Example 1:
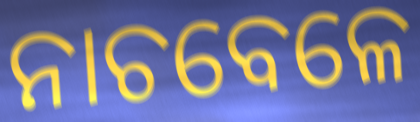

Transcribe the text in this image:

ନାଚବେଳେ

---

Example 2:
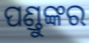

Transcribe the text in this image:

ପଣ୍ଡୁଙ୍କର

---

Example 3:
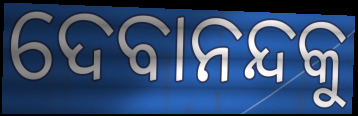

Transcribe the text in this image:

ଦେବାନନ୍ଦକୁ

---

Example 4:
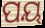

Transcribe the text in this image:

ପୟ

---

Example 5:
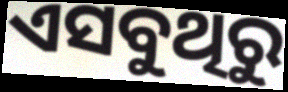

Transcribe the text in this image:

ଏସବୁଥିରୁ